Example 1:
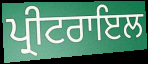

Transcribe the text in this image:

ਪ੍ਰੀਟਰਾਇਲ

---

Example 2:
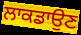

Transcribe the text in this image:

ਲਾਕਡਾਉਣ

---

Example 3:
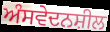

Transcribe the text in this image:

ਅੰਸਵੇਦਨਸ਼ੀਲ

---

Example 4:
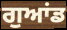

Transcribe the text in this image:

ਗੁਆਂਡ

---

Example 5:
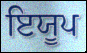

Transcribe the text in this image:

ਇਯੂਪ